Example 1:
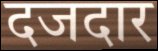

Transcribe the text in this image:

दजदार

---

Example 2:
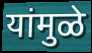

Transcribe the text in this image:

यांमुळे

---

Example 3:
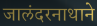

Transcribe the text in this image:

जालंदरनाथाने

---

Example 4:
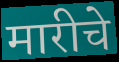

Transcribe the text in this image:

मारीचे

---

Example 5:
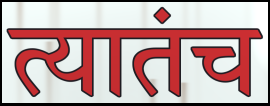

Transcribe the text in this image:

त्यातंच